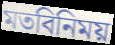
মতবিনিময়